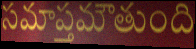
సమాప్తమౌతుంది